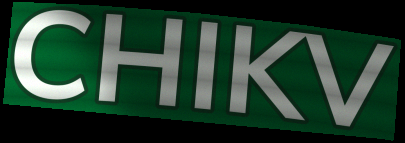
CHIKV